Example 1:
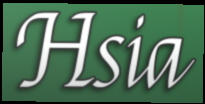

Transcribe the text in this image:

Hsia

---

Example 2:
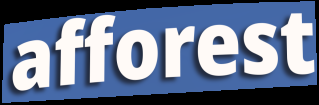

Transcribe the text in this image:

afforest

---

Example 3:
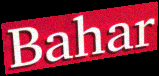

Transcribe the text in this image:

Bahar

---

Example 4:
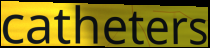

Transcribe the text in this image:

catheters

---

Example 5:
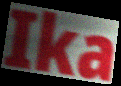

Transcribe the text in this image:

Ika